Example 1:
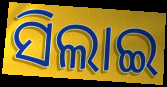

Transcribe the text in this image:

ସିଲାଇ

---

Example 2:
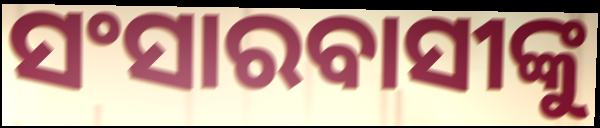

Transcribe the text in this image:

ସଂସାରବାସୀଙ୍କୁ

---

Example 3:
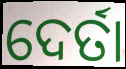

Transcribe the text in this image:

ଦେର୍ତା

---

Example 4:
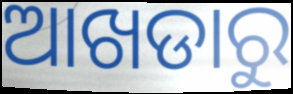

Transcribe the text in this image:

ଆଖଡାରୁ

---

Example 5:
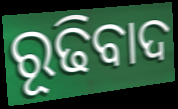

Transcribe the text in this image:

ରୂଢିବାଦ